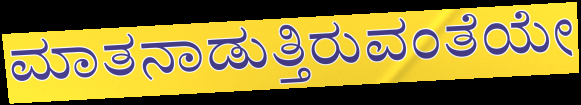
ಮಾತನಾಡುತ್ತಿರುವಂತೆಯೇ